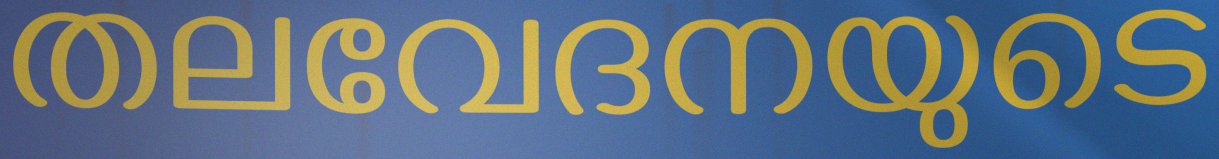
തലവേദനയുടെ